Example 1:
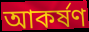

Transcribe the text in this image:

আকৰ্ষণ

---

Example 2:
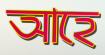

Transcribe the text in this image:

আহে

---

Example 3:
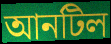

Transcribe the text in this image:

আনটিল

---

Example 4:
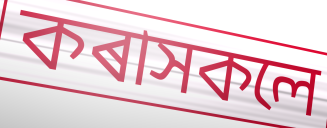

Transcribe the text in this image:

কৰাসকলে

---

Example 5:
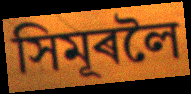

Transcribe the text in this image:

সিমূৰলৈ